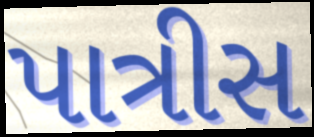
પાત્રીસ